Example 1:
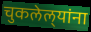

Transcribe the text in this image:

चुकलेल्यांना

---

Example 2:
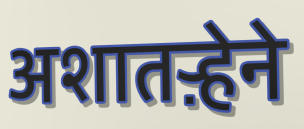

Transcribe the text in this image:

अशातऱ्‍हेने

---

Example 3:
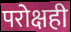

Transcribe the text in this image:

परोक्षही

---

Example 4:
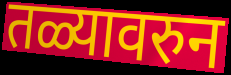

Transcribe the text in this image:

तळ्यावरुन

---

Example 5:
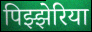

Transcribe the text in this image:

पिझ्झेरिया